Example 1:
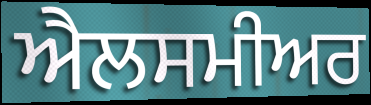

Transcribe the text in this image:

ਐਲਸਮੀਅਰ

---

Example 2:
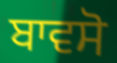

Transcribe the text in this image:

ਬਾਵਸੋ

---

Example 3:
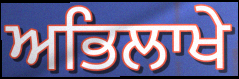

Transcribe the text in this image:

ਅਭਿਲਾਖੇ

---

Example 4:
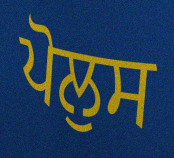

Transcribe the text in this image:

ਪੋਲੁਸ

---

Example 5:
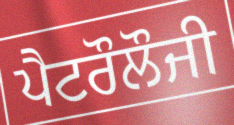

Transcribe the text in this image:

ਪੈਟਰੌਲੌਜੀ